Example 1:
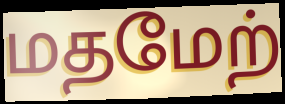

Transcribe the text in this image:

மதமேற்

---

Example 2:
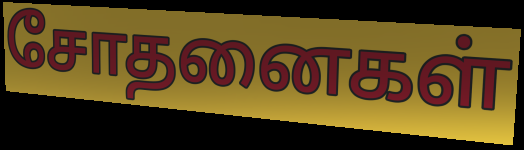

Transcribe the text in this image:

சோதனைகள்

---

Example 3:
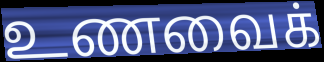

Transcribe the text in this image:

உணவைக்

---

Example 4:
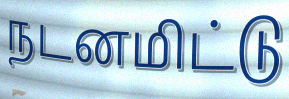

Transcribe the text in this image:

நடனமிட்டு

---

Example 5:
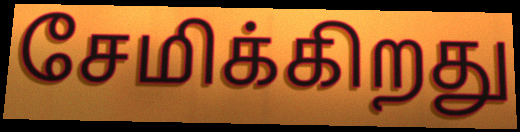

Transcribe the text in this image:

சேமிக்கிறது